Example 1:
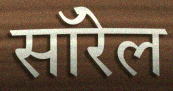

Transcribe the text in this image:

सॉरेल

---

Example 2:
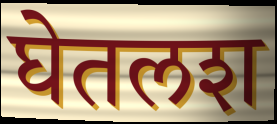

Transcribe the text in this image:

घेतलश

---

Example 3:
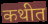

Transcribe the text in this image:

कथीत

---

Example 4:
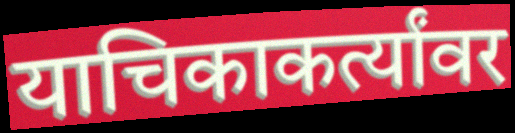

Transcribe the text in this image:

याचिकाकर्त्यांवर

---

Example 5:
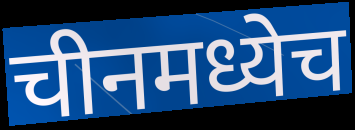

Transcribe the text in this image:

चीनमध्येच